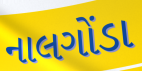
નાલગોંડા